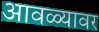
आवळ्यावर